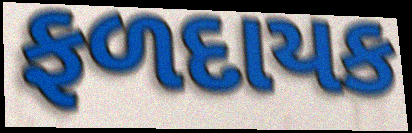
ફળદાયક